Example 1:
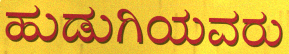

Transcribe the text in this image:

ಹುಡುಗಿಯವರು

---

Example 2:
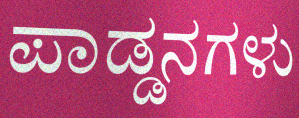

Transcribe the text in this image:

ಪಾಡ್ಡನಗಳು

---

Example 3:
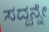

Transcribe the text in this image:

ಸದ್ದನ್ನೇ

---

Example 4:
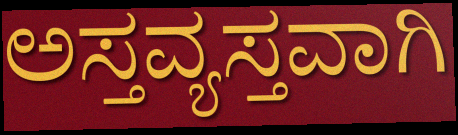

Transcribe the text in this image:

ಅಸ್ತವ್ಯಸ್ತವಾಗಿ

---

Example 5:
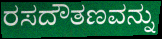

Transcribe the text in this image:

ರಸದೌತಣವನ್ನು